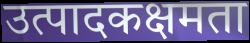
उत्पादकक्षमता